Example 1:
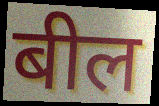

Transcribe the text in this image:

बील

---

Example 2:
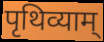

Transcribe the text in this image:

पृथिव्याम्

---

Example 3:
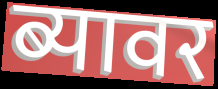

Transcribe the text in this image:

ब्यावर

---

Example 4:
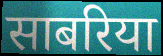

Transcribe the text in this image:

साबरिया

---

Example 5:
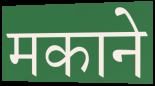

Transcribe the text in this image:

मकाने